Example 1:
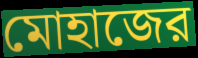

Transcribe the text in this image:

মোহাজের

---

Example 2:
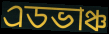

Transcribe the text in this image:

এডভাঞ্চ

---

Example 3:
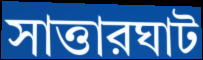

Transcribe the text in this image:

সাত্তারঘাট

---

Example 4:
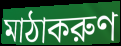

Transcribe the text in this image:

মাঠাকরুণ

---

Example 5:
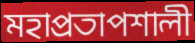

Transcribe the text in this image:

মহাপ্রতাপশালী